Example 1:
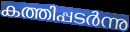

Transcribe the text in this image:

കത്തിപ്പടർന്നു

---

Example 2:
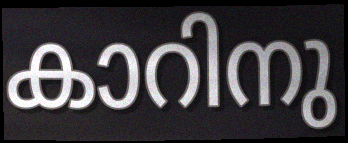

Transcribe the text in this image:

കാറിനു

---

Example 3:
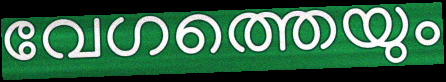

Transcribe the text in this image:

വേഗത്തെയും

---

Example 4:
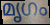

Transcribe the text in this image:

മൃഗം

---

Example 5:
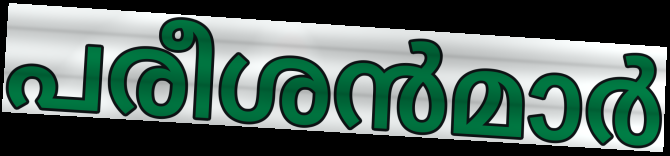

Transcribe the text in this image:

പരീശൻമാർ